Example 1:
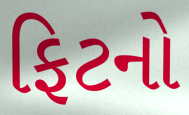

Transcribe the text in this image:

ફિટનો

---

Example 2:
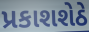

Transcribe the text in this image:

પ્રકાશશેઠે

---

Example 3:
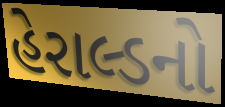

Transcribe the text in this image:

હેરાલ્ડનો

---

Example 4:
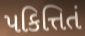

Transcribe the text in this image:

પકિત્તિતં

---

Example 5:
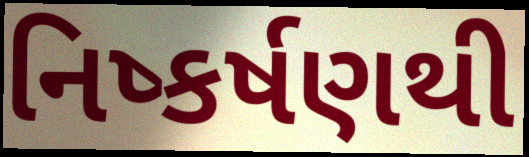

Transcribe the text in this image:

નિષ્કર્ષણથી